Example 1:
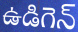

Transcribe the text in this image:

ఉడిగెన్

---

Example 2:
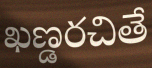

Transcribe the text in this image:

ఖణ్డరచితే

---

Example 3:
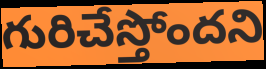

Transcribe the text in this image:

గురిచేస్తోందని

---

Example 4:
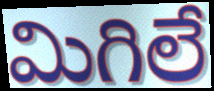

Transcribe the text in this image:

మిగిలే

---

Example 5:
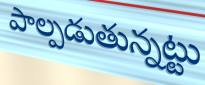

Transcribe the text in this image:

పాల్పడుతున్నట్టు